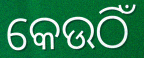
କେଉଠିଁ